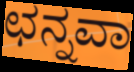
ಛನ್ನವಾ